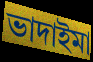
ভাদাইমা